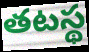
తటస్థ